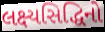
લક્ષ્યસિદ્ધિનો